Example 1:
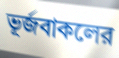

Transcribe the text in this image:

ভূর্জবাকলের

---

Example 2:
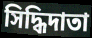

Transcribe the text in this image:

সিদ্ধিদাতা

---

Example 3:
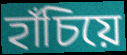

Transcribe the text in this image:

হাঁচিয়ে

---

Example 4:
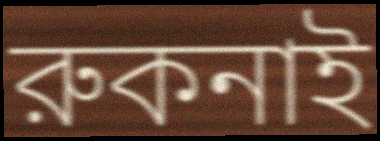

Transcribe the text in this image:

রুকনাই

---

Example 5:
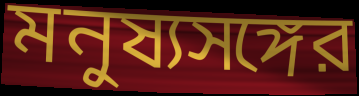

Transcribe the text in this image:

মনুষ্যসঙ্গের